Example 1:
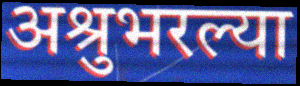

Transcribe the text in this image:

अश्रुभरल्या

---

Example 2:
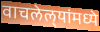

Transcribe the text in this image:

वाचलेल्यांमध्ये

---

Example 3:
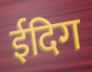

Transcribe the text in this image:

ईदिग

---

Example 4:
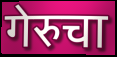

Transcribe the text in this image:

गेरुचा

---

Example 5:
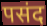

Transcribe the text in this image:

पसंद